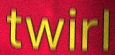
twirl